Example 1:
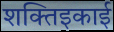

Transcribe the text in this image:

शक्तिइकाई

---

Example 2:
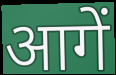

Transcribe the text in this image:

आगें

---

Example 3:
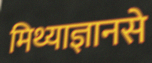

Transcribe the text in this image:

मिथ्याज्ञानसे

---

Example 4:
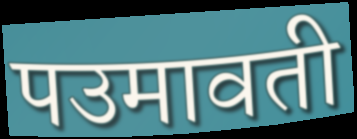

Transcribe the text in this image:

पउमावती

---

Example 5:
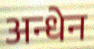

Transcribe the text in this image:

अन्धेन